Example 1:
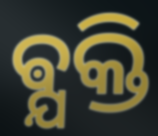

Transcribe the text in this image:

ଵ୍ଯକ୍ତି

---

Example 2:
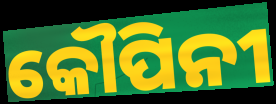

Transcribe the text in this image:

କୌପିନୀ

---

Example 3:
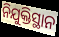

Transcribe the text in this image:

ନିଯୁକ୍ତିସ୍ଥାନ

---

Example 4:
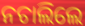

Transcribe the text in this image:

ନଚାଲିଲେ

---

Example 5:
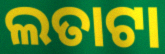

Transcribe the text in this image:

ଲତାଟା